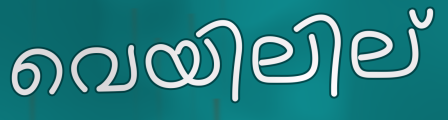
വെയിലില്